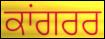
ਕਾਂਗਰਰ